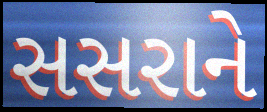
સસરાને